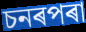
চনৰপৰা